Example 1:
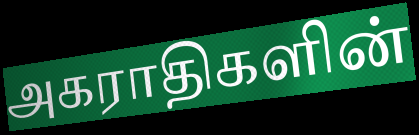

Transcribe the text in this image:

அகராதிகளின்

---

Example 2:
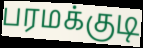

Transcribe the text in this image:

பரமக்குடி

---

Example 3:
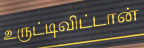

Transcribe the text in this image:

உருட்டிவிட்டான்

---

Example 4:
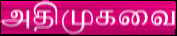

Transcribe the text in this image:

அதிமுகவை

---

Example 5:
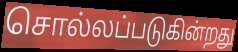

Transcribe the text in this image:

சொல்லப்படுகின்றது